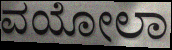
ವಯೋಲಾ